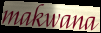
makwana